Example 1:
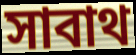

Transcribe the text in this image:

সাবাথ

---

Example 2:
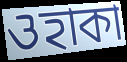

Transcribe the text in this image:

ওহাকা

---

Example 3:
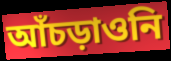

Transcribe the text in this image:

আঁচড়াওনি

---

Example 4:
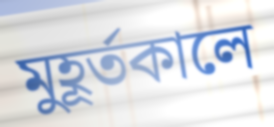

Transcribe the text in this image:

মুহূর্তকালে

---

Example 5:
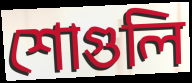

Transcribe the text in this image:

শোগুলি